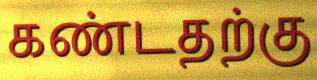
கண்டதற்கு